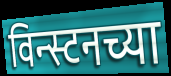
विन्स्टनच्या